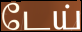
டேய்